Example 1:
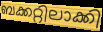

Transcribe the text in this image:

ബക്കറ്റിലാക്കി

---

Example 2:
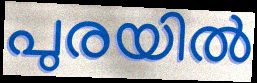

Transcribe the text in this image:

പുരയിൽ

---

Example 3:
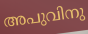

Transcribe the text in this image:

അപുവിനു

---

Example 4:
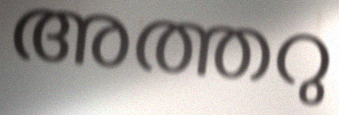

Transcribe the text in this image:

അത്തറു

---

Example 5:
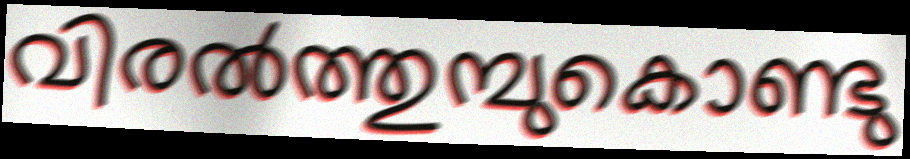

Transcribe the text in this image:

വിരൽത്തുമ്പുകൊണ്ടു